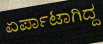
ಏರ್ಪಾಟಾಗಿದ್ದ